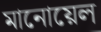
মানোয়েল